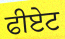
ਫੀਏਟ